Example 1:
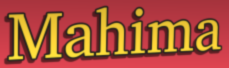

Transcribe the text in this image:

Mahima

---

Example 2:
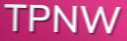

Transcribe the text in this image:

TPNW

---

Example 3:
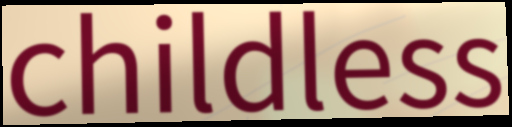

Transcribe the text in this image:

childless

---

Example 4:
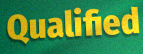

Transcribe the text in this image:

Qualified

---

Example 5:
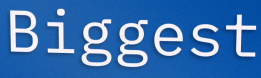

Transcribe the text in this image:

Biggest